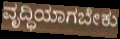
ವೃದ್ಧಿಯಾಗಬೇಕು